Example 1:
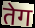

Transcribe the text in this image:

तेग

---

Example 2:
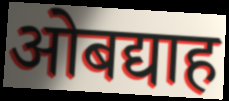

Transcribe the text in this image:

ओबद्याह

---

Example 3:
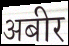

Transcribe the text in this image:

अबीर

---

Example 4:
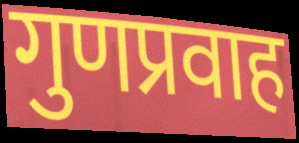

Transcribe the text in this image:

गुणप्रवाह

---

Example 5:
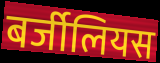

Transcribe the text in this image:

बर्जीलियस